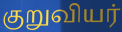
குறுவியர்